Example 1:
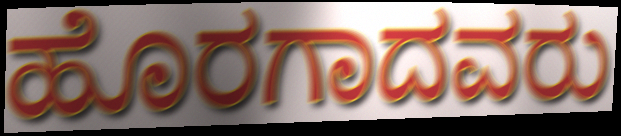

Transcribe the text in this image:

ಹೊರಗಾದವರು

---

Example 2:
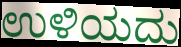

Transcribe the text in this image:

ಉಳಿಯದು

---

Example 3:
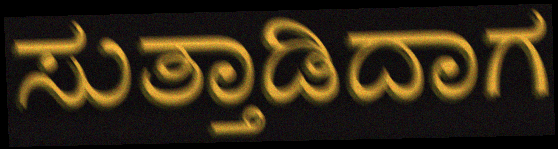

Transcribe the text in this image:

ಸುತ್ತಾಡಿದಾಗ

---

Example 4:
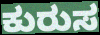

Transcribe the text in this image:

ಕುರುಸ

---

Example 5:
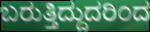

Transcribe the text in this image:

ಬರುತ್ತಿದ್ದುದರಿಂದ